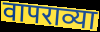
वापराव्या